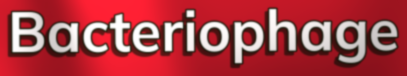
Bacteriophage